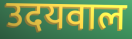
उदयवाल